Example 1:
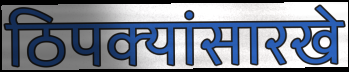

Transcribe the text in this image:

ठिपक्यांसारखे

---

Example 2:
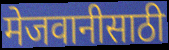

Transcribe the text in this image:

मेजवानीसाठी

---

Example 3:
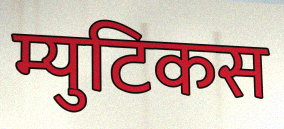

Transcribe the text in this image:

म्युटिकस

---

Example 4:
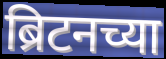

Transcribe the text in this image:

ब्रिटनच्या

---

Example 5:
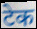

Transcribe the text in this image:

टेक